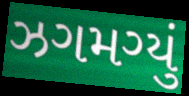
ઝગમગ્યું